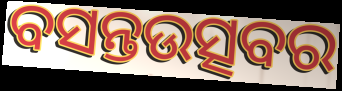
ବସନ୍ତଉତ୍ସବର